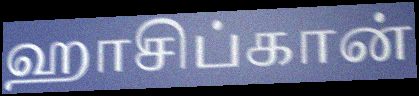
ஹாசிப்கான்